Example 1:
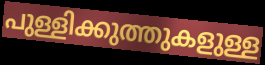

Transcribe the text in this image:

പുള്ളിക്കുത്തുകളുള്ള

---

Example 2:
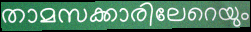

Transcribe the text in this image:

താമസക്കാരിലേറെയും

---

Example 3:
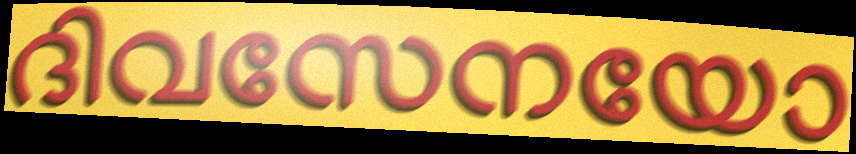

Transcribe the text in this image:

ദിവസേനയോ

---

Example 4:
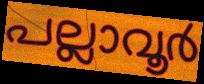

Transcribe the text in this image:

പല്ലാവൂർ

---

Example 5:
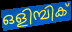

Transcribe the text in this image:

ഒളിമ്പിക്